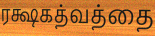
ரக்ஷகத்வத்தை